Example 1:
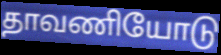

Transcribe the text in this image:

தாவணியோடு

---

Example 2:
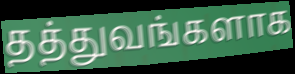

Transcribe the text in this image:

தத்துவங்களாக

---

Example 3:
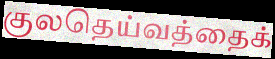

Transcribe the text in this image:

குலதெய்வத்தைக்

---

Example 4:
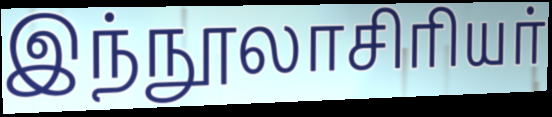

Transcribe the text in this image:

இந்நூலாசிரியர்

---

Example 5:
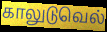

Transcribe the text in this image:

காலுடுவெல்